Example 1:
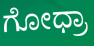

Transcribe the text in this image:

ಗೋಧ್ರಾ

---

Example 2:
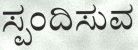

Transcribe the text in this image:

ಸ್ಪಂದಿಸುವ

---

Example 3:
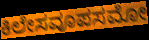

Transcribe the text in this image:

ಕಿಲೇಸವೂಪಸಮೋ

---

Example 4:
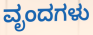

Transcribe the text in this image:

ವೃಂದಗಳು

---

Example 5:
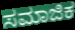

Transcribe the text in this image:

ಸಮಾಜಿಕ